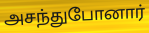
அசந்துபோனார்